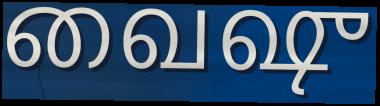
வைஷு